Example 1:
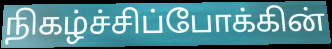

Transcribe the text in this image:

நிகழ்ச்சிப்போக்கின்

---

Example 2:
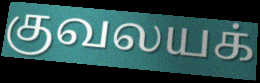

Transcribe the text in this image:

குவலயக்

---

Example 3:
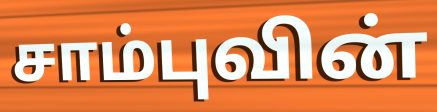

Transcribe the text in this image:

சாம்புவின்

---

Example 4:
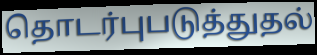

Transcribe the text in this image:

தொடர்புபடுத்துதல்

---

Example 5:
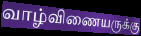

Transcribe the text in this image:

வாழ்விணையருக்கு